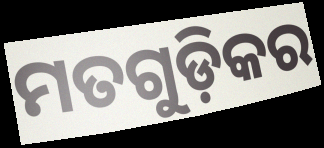
ମତଗୁଡ଼ିକର